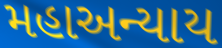
મહાઅન્યાય